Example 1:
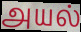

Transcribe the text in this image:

அயல்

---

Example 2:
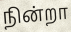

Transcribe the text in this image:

நின்றா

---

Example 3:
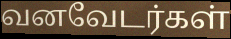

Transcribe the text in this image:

வனவேடர்கள்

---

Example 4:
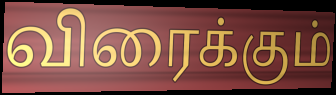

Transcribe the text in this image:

விரைக்கும்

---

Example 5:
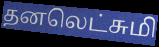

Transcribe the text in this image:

தனலெட்சுமி